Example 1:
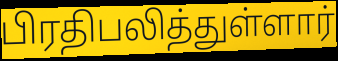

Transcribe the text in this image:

பிரதிபலித்துள்ளார்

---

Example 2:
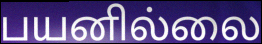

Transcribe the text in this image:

பயனில்லை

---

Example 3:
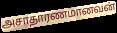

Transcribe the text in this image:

அசாதாரணமானவன்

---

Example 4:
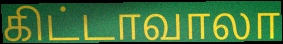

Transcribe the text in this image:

கிட்டாவாலா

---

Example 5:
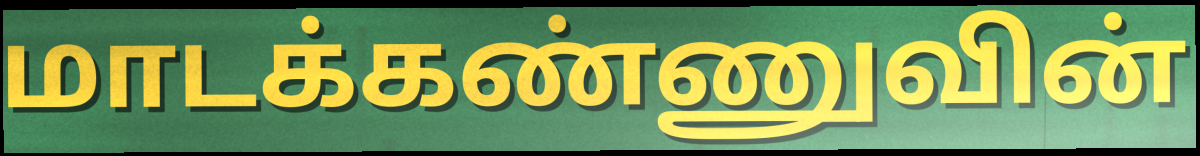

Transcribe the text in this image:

மாடக்கண்ணுவின்